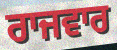
ਰਾਜਵਾਰ